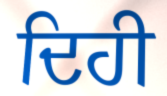
ਦਿਹੀ